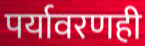
पर्यावरणही